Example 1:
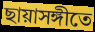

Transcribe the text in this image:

ছায়াসঙ্গীতে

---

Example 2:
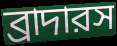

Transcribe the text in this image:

ব্রাদারস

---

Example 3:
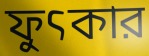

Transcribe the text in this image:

ফুৎকার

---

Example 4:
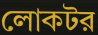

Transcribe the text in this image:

লোকটর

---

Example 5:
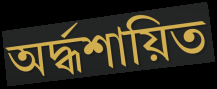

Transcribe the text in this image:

অর্দ্ধশায়িত